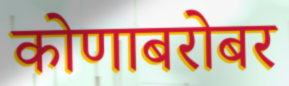
कोणाबरोबर